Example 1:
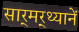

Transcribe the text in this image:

सार्मर्थ्यानें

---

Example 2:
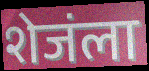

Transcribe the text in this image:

शेजंला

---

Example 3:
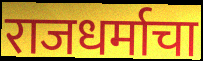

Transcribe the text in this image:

राजधर्माचा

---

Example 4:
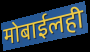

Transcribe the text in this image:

मोबाईलही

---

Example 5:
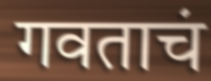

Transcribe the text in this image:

गवताचं